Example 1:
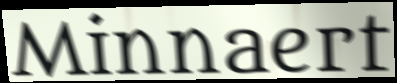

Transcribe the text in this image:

Minnaert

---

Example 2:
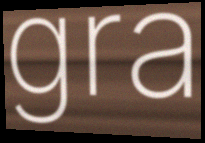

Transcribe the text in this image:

gra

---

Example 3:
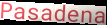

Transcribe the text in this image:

Pasadena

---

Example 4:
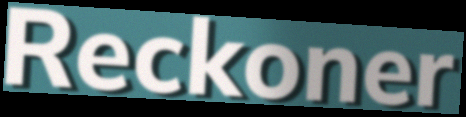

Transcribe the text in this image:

Reckoner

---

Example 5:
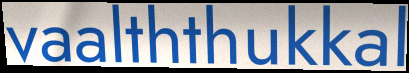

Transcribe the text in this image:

vaalththukkal